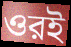
ওরই